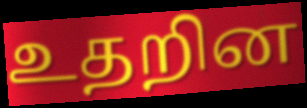
உதறின